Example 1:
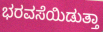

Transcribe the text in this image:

ಭರವಸೆಯಿಡುತ್ತಾ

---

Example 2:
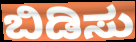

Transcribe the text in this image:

ಬಿಡಿಸು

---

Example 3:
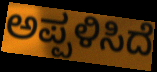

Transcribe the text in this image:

ಅಪ್ಪಳಿಸಿದೆ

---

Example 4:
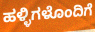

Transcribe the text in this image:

ಹಳ್ಳಿಗಳೊಂದಿಗೆ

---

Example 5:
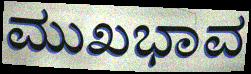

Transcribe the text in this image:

ಮುಖಭಾವ